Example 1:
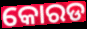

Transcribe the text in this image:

କୋରଡ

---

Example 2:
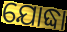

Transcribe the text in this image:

ଯୋଦ୍ଧା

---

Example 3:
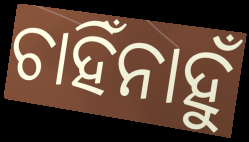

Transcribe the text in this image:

ଚାହିଁନାହୁଁ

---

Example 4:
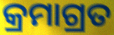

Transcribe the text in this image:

କ୍ରମାଗ୍ରତ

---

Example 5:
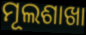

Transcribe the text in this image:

ମୂଲଶାଖା